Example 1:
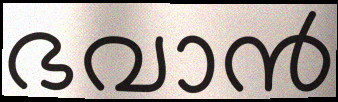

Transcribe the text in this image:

ഭവാൻ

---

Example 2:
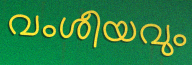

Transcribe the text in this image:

വംശീയവും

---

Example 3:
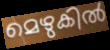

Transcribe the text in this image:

മെഴുകിൽ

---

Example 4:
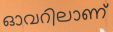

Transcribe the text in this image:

ഓവറിലാണ്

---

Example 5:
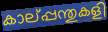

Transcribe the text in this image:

കാല്പ്പന്തുകളി